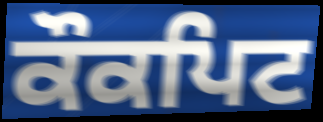
ਕੌਕਪਿਟ